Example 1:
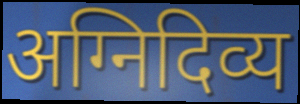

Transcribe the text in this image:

अग्निदिव्य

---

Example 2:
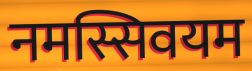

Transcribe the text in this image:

नमस्सिवयम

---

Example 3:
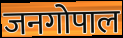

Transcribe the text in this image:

जनगोपाल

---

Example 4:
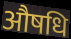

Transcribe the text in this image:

औषधि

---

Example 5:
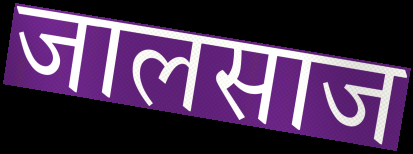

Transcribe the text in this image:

जालसाज